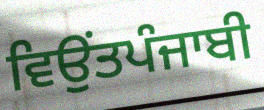
ਵਿਉਂਤਪੰਜਾਬੀ